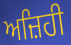
ਅਜ਼ਿਹੀ